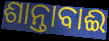
ଶାନ୍ତାବାଈ